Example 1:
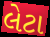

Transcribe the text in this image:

લેટા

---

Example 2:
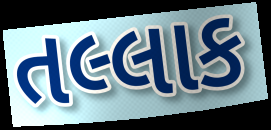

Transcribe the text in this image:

તલ્લાક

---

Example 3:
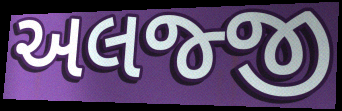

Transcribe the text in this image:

અલજ્જી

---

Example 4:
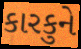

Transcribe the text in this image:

કારકુને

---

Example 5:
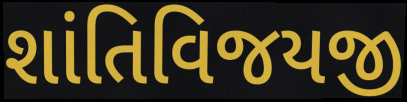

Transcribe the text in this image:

શાંતિવિજયજી